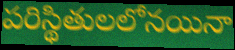
పరిస్థితులలోనయినా